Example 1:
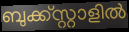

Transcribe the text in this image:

ബുക്ക്സ്റ്റാളിൽ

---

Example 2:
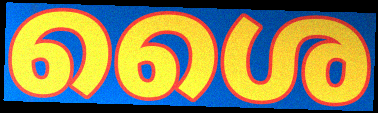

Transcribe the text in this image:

ശൈ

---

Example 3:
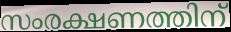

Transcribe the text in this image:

സംരക്ഷണത്തിന്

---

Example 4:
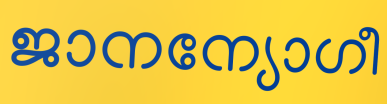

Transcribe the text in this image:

ജാനന്യോഗീ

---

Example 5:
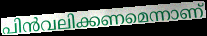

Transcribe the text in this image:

പിൻവലിക്കണമെന്നാണ്